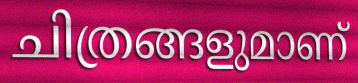
ചിത്രങ്ങളുമാണ്